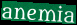
anemia